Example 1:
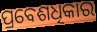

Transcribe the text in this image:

ପ୍ରବେଶଧିକାର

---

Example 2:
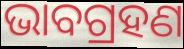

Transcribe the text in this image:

ଭାବଗ୍ରହଣ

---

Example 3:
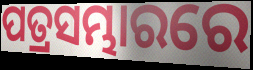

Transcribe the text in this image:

ପତ୍ରସମ୍ଭାରରେ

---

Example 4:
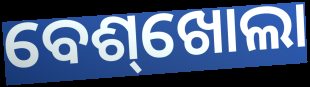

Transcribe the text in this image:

ବେଶ୍‌ଖୋଲା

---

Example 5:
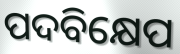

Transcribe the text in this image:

ପଦବିକ୍ଷେପ